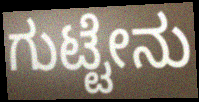
ಗುಟ್ಟೇನು